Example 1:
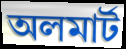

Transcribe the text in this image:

অলমার্ট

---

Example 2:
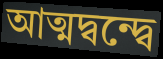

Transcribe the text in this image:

আত্মদ্বন্দ্বে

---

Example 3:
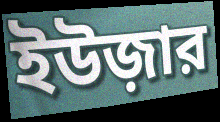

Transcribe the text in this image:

ইউজ়ার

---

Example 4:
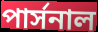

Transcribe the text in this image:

পার্সনাল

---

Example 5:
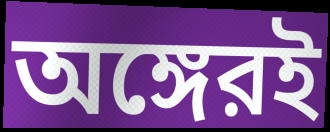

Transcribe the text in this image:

অঙ্গেরই